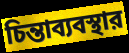
চিন্তাব্যবস্থার